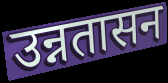
उन्नतासन